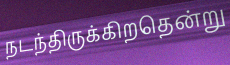
நடந்திருக்கிறதென்று